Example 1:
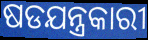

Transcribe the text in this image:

ଷଡଯନ୍ତ୍ରକାରୀ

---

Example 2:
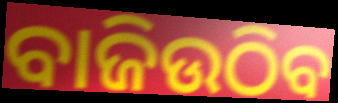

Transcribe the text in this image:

ବାଜିଉଠିବ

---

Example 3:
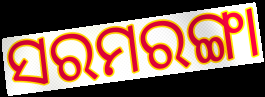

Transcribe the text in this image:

ସରମରଙ୍ଗା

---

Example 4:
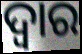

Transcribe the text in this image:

ଦ୍ବାର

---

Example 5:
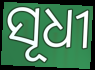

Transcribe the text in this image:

ସୂଧୀ